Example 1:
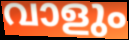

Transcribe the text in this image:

വാളും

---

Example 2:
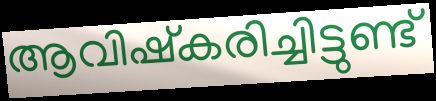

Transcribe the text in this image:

ആവിഷ്കരിച്ചിട്ടുണ്ട്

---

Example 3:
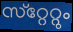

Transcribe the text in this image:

സ്‌റ്റേറ്റും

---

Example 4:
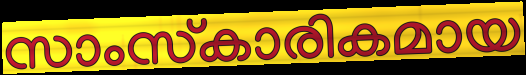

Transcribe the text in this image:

സാംസ്‌കാരികമായ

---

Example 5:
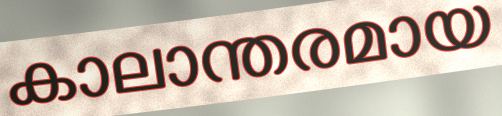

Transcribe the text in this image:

കാലാന്തരമായ